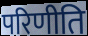
परिणीति